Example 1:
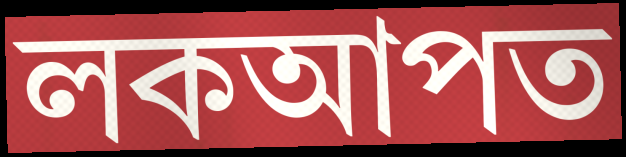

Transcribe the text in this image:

লকআপত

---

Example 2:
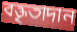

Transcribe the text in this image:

বক্তৃতাদান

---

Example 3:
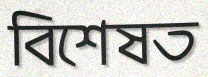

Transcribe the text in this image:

বিশেষত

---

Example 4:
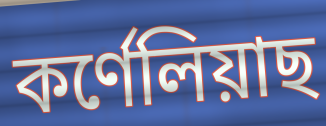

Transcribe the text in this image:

কৰ্ণেলিয়াছ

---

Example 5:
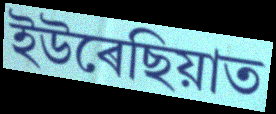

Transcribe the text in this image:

ইউৰেছিয়াত